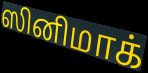
ஸினிமாக்